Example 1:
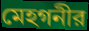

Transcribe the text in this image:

মেহগনীর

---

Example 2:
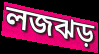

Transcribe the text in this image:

লজঝড়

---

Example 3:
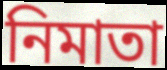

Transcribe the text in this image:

নিমাতা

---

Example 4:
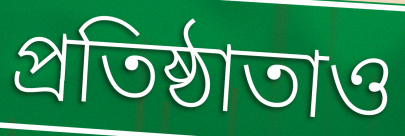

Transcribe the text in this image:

প্রতিষ্ঠাতাও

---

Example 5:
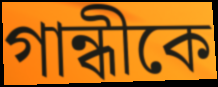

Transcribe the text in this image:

গান্ধীকে